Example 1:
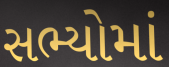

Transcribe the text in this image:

સભ્યોમાં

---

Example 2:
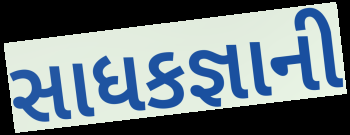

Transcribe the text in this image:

સાધકજ્ઞાની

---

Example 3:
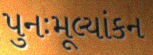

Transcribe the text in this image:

પુનઃમૂલ્યાંકન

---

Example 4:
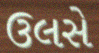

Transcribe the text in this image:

ઉલસે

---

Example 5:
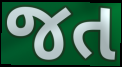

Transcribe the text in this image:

જત